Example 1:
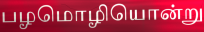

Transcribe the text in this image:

பழமொழியொன்று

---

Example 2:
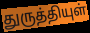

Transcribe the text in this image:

துருத்தியுள்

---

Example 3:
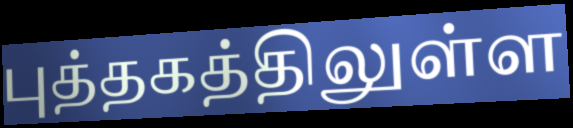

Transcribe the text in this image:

புத்தகத்திலுள்ள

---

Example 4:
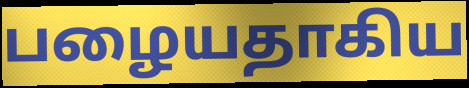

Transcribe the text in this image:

பழையதாகிய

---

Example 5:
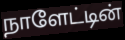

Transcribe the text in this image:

நாளேட்டின்